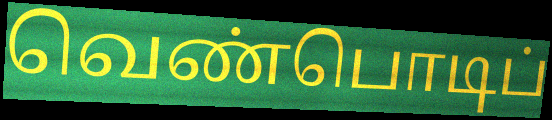
வெண்பொடிப்